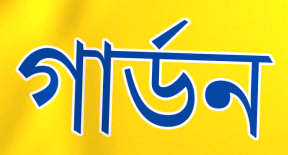
গার্ডন